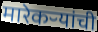
मारेकऱ्यांची